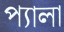
প্যালা